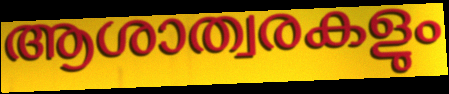
ആശാത്വരകളും